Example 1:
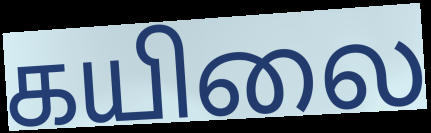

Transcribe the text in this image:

கயிலை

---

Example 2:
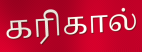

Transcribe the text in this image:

கரிகால்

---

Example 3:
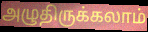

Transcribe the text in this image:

அழுதிருக்கலாம்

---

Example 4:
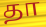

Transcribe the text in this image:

தா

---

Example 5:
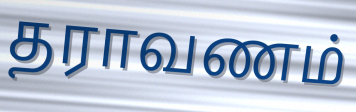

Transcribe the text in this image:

தராவணம்